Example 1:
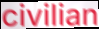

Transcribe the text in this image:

civilian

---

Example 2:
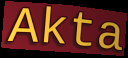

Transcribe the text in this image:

Akta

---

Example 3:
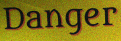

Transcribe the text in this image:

Danger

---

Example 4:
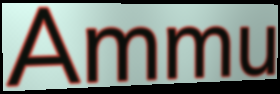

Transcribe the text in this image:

Ammu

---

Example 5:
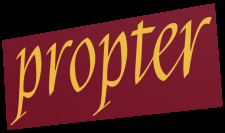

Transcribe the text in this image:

propter